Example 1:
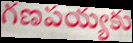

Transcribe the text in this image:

గణపయ్యకు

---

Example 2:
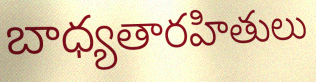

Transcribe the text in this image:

బాధ్యతారహితులు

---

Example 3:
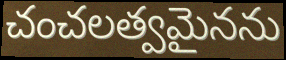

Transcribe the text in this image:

చంచలత్వమైనను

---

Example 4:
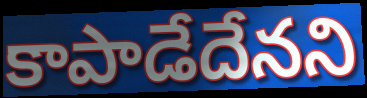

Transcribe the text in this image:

కాపాడేదేనని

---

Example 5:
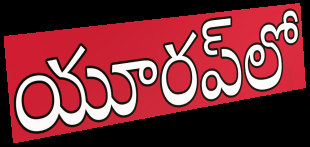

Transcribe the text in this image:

యూరప్‌లో